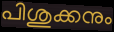
പിശുക്കനും